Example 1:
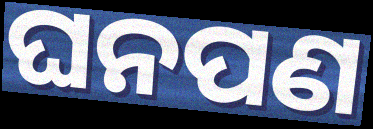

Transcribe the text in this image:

ଘନପଣ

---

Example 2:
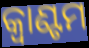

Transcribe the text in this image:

କ୍ୱାଣ୍ଟମ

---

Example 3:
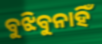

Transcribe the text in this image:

ବୁଝିବୁନାହିଁ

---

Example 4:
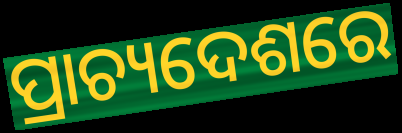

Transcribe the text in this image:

ପ୍ରାଚ୍ୟଦେଶରେ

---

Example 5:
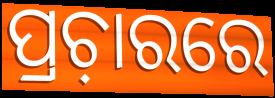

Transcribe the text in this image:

ପ୍ରଚ଼ାରରେ